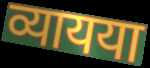
व्यायया